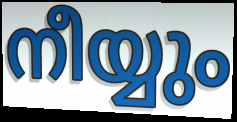
നീയ്യും